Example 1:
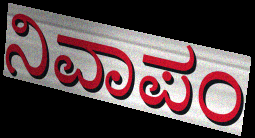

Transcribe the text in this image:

ನಿವಾಪಂ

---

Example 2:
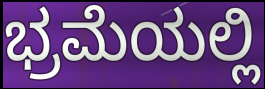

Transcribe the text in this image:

ಭ್ರಮೆಯಲ್ಲಿ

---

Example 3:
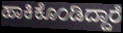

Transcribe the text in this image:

ಹಾಕಿಕೊಂಡಿದ್ದಾರೆ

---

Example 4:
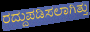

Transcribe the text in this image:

ರದ್ದುಪಡಿಸಲಾಗಿತ್ತು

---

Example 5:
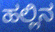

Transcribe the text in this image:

ಹಲ್ಲಿನ